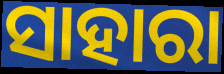
ସାହାରା